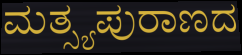
ಮತ್ಸ್ಯಪುರಾಣದ